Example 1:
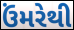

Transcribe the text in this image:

ઉંમરેથી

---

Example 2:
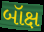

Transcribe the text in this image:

બૉક્ષ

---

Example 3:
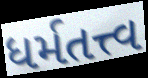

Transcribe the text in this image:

ધર્મતત્ત્વ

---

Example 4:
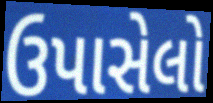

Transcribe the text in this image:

ઉપાસેલો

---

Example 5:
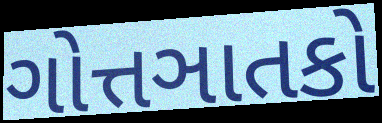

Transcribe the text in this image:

ગોત્તઞાતકો